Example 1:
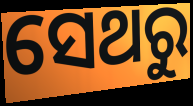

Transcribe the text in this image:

ସେଥରୁ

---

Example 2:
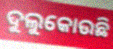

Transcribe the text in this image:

ଦୁଲୁକୋଉଛି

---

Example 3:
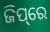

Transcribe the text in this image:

ଜିପ୍‌ରେ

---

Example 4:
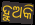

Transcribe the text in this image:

ହୁଅକି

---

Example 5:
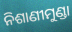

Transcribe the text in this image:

ନିଶାଣୀମୁଣ୍ଡା